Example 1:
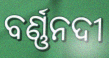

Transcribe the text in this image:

ବର୍ଣ୍ଣନଦୀ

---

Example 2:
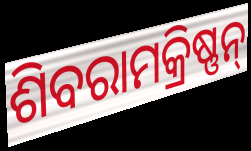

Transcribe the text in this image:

ଶିବରାମକ୍ରିଷ୍ଣନ୍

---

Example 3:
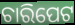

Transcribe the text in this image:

ଚାରିପେଟ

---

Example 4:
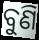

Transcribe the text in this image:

ବୁଣି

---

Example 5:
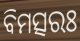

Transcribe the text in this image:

ବିମତ୍ସରଃ